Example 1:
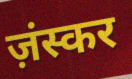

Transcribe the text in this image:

ज़ंस्कर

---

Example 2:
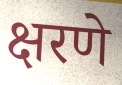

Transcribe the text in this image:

क्षरणे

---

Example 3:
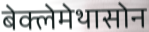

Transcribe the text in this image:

बेक्लेमेथासोन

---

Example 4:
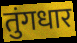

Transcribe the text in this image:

तुंगधार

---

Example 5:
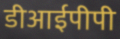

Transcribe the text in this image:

डीआईपीपी